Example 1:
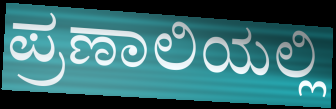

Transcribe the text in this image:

ಪ್ರಣಾಲಿಯಲ್ಲಿ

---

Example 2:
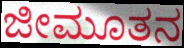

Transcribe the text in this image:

ಜೀಮೂತನ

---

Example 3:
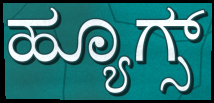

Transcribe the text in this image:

ಹ್ಯೂಗ್ಸ್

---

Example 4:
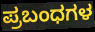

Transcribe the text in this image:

ಪ್ರಬಂಧಗಳ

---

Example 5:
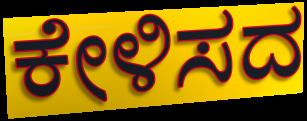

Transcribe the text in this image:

ಕೇಳಿಸದ